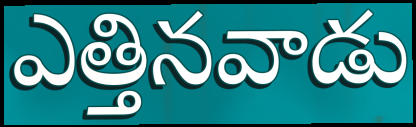
ఎత్తినవాడు